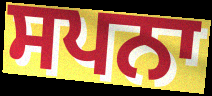
ਸਪਨਾ